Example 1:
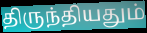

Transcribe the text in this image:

திருந்தியதும்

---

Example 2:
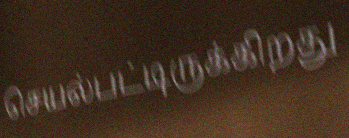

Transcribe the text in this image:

செயல்பட்டிருக்கிறது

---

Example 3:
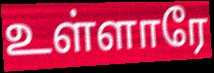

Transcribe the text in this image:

உள்ளாரே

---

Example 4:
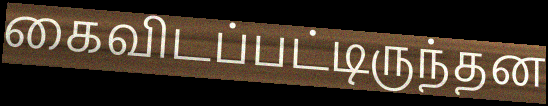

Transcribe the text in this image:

கைவிடப்பட்டிருந்தன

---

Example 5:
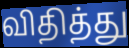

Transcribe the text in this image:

விதித்து